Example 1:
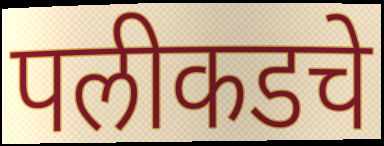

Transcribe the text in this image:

पलीकडचे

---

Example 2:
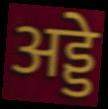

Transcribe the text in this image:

अड्डे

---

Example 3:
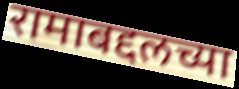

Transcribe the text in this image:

रामाबद्दलच्या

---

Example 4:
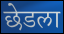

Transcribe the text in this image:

छेडला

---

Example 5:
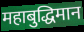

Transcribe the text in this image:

महाबुद्धिमान